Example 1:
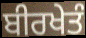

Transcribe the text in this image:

ਬੀਰਖੇਤੰ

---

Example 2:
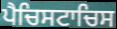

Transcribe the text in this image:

ਪੈਚਿਸਟਾਚਿਸ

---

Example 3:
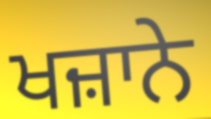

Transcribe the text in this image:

ਖਜ਼ਾਨੇ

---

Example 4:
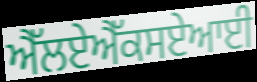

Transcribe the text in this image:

ਐੱਲਏਐੱਕਸਏਆਈ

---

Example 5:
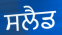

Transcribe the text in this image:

ਸਲੈਡ